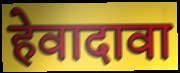
हेवादावा